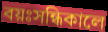
বয়ঃসন্ধিকালে